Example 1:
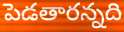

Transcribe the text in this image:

పెడతారన్నది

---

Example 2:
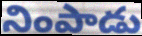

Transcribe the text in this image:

నింపాడు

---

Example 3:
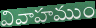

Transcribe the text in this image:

వివాహముం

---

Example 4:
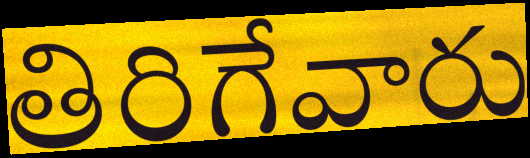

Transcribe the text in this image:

తిరిగేవారు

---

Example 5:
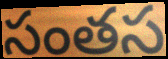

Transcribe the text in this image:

సంతస